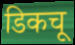
डिकचू